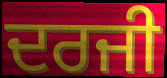
ਦਰਜੀ